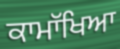
ਕਾਮਾੱਖਿਆ